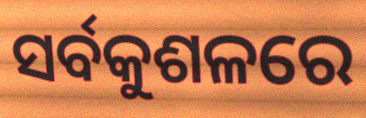
ସର୍ବକୁଶଳରେ